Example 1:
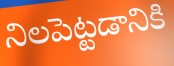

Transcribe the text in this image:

నిలపెట్టడానికి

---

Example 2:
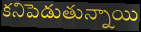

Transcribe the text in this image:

కనిపెడుతున్నాయి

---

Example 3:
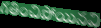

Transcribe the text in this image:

గతించిపోయినవి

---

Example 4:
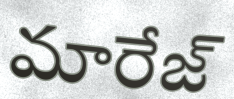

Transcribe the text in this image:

మారేజ్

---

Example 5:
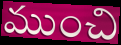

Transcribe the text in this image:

ముంచి